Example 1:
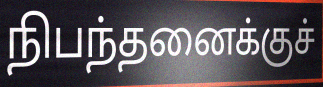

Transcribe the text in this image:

நிபந்தனைக்குச்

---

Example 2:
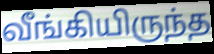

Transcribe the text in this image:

வீங்கியிருந்த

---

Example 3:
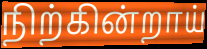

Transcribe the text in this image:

நிற்கின்றாய்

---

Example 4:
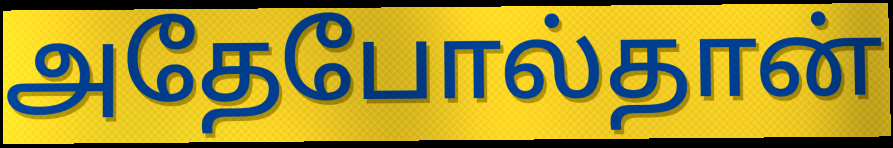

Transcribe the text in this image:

அதேபோல்தான்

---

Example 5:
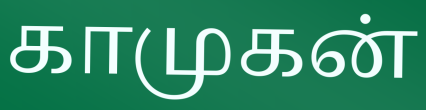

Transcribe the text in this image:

காமுகன்